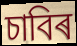
চাবিৰ